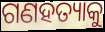
ଗଣହତ୍ୟାକୁ